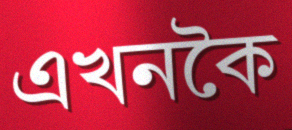
এখনকৈ